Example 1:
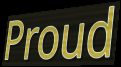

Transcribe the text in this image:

Proud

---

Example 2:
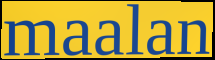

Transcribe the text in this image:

maalan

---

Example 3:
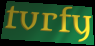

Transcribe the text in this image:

turfy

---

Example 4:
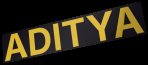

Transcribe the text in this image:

ADITYA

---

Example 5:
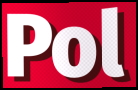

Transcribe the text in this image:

Pol